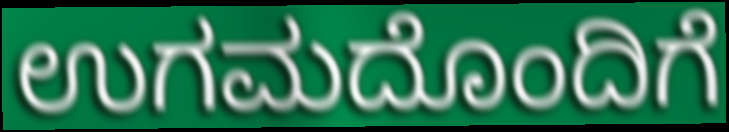
ಉಗಮದೊಂದಿಗೆ